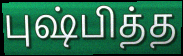
புஷ்பித்த